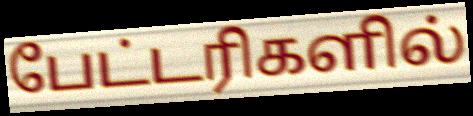
பேட்டரிகளில்